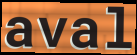
aval